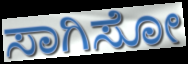
ಸಾಗಿಸೋ